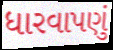
ધારવાપણું